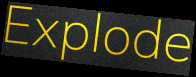
Explode